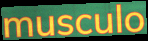
musculo